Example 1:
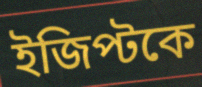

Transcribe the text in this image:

ইজিপ্টকে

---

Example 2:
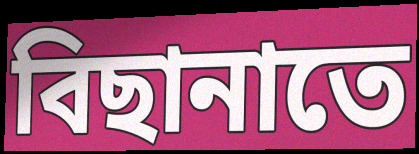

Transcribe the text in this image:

বিছানাতে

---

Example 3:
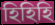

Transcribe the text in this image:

হিহিহি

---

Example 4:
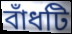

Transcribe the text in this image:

বাঁধটি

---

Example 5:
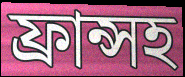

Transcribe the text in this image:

ফ্রান্সহ